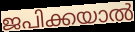
ജപിക്കയാൽ